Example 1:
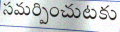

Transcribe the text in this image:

సమర్పించుటకు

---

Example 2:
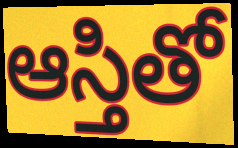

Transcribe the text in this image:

ఆస్తితో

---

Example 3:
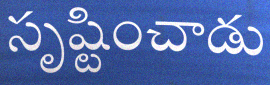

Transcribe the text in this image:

సృష్టించాడు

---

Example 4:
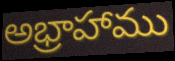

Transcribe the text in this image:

అభ్రాహాము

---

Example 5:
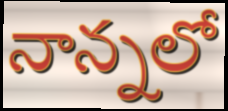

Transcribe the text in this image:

నాన్నలో